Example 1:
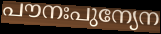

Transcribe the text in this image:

പൗനഃപുന്യേന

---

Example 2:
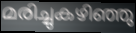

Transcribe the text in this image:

മരിച്ചുകഴിഞ്ഞു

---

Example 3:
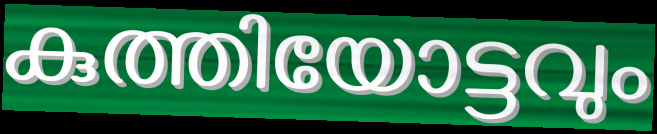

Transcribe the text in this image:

കുത്തിയോട്ടവും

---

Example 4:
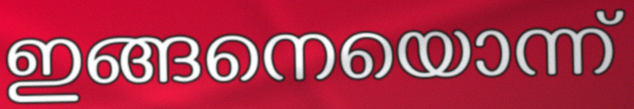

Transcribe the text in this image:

ഇങ്ങനെയൊന്ന്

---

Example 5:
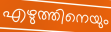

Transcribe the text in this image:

എഴുത്തിനെയും